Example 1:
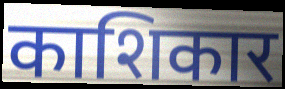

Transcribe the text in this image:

काशिकार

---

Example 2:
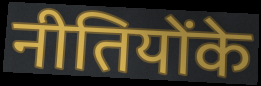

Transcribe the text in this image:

नीतियोंके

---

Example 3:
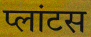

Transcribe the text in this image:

प्लांटस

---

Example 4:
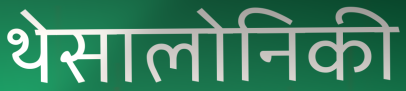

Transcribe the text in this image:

थेसालोनिकी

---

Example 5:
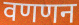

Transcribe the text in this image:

वणणन